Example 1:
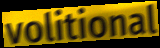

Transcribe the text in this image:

volitional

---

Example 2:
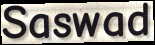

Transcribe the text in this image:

Saswad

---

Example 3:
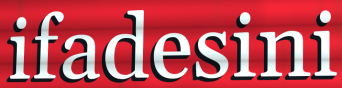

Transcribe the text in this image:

ifadesini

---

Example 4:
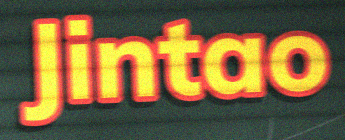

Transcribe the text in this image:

Jintao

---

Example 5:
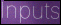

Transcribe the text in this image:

Inputs